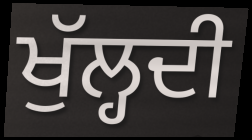
ਖੁੱਲ੍ਹਦੀ